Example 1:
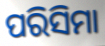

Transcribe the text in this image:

ପରିସିମା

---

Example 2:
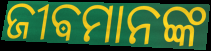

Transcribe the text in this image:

ଜୀଵମାନଙ୍କ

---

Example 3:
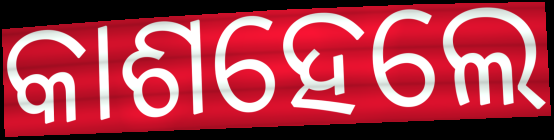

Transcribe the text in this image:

କାଶହେଲେ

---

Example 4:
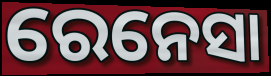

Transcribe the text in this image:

ରେନେସା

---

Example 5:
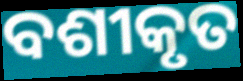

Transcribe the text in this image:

ବଶୀକୃତ